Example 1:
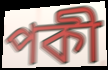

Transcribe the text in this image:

পকী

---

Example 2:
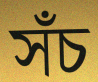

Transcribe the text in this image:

সঁচ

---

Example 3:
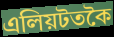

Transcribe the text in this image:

এলিয়টতকৈ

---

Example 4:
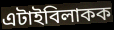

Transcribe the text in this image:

এটাইবিলাকক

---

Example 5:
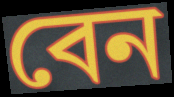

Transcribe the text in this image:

বেন